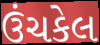
ઉંચકેલ